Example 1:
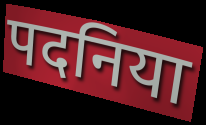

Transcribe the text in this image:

पदनिया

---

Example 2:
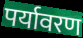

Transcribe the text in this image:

पर्यावरण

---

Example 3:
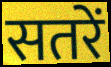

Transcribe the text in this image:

सतरें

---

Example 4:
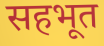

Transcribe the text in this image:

सहभूत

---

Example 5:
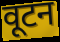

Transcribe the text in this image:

वूटन